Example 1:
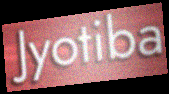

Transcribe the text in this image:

Jyotiba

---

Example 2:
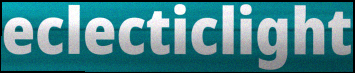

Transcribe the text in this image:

eclecticlight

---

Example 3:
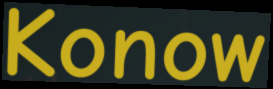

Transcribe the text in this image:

Konow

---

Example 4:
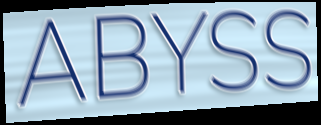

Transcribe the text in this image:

ABYSS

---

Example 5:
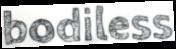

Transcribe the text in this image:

bodiless